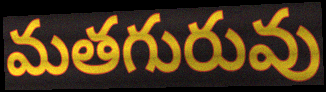
మతగురువు